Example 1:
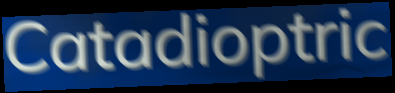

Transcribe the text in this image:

Catadioptric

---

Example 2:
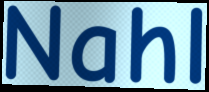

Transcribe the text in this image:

Nahl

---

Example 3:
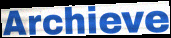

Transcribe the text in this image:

Archieve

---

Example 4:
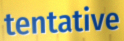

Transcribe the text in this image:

tentative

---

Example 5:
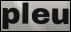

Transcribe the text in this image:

pleu